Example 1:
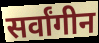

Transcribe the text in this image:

सर्वांगीन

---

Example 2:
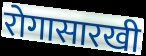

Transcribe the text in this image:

रोगासारखी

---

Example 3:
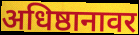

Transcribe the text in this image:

अधिष्ठानावर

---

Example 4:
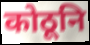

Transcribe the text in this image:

कोठूनि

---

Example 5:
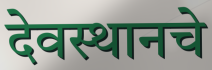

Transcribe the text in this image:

देवस्थानचे